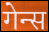
गेन्स